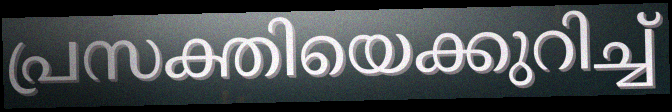
പ്രസക്തിയെക്കുറിച്ച്